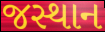
જસ્થાન